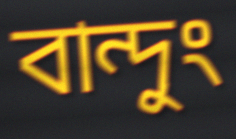
বান্দুং